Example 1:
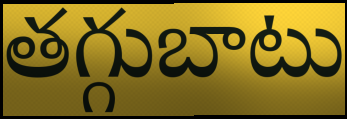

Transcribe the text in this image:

తగ్గుబాటు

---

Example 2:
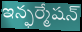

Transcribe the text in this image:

ఇన్ఫర్మేషన్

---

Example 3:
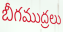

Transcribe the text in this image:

బీగముద్రలు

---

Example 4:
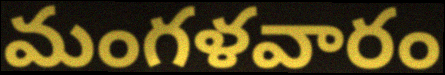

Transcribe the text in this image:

మంగళవారం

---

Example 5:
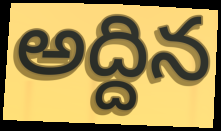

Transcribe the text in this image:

అద్దిన